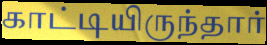
காட்டியிருந்தார்